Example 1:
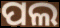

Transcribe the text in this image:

ପଲ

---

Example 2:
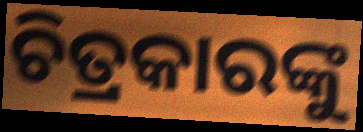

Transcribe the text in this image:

ଚିତ୍ରକାରଙ୍କୁ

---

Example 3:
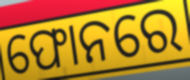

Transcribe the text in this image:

ଫୋନରେ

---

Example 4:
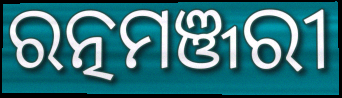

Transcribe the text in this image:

ରତ୍ନମଞ୍ଜରୀ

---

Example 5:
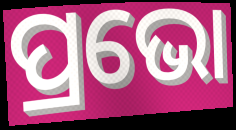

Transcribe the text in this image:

ପ୍ରଭୋ